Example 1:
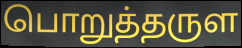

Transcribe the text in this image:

பொறுத்தருள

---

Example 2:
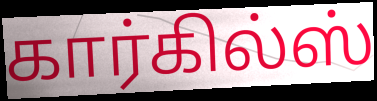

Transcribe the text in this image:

கார்கில்ஸ்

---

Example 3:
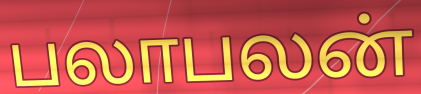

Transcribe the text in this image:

பலாபலன்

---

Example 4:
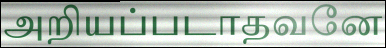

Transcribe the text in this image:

அறியப்படாதவனே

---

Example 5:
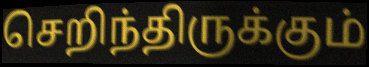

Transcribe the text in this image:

செறிந்திருக்கும்